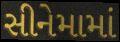
સીનેમામાં